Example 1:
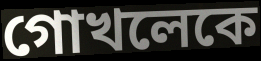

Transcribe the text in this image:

গোখলেকে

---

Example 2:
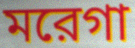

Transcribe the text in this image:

মরেগা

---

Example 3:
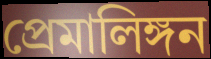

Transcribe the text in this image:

প্রেমালিঙ্গন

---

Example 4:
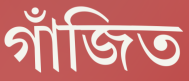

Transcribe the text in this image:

গাঁজিত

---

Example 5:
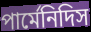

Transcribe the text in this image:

পার্মেনিদিস